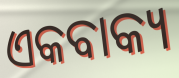
ଏକବାକ୍ୟ